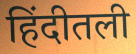
हिंदीतली